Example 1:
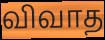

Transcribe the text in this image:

விவாத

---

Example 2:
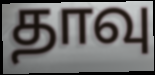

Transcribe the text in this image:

தாவு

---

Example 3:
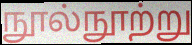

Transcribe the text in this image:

நூல்நூற்று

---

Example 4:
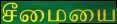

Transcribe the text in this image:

சீமையை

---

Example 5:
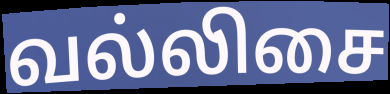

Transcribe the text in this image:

வல்லிசை